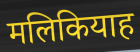
मलिकियाह